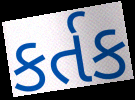
કર્તક